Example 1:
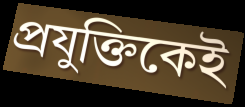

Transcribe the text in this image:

প্রযুক্তিকেই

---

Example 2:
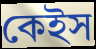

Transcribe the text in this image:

কেইস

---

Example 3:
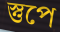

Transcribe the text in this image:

স্তুপে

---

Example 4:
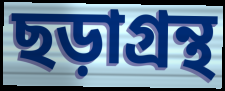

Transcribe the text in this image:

ছড়াগ্রন্থ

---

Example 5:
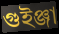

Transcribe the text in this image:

গুইঞ্জা